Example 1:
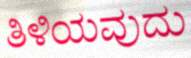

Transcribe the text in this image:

ತಿಳಿಯವುದು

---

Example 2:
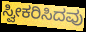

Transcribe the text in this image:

ಸ್ವೀಕರಿಸಿದವು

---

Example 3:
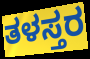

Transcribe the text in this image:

ತಳಸ್ತರ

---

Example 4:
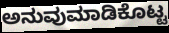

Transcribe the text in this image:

ಅನುವುಮಾಡಿಕೊಟ್ಟ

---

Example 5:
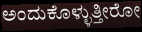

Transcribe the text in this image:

ಅಂದುಕೊಳ್ಳುತ್ತೀರೋ